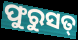
ଫୁରୁସତ୍